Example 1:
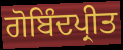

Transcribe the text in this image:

ਗੋਬਿੰਦਪ੍ਰੀਤ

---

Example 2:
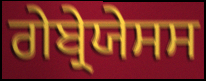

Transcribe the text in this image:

ਗੇਬ੍ਰੇਯੇਸਸ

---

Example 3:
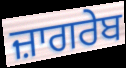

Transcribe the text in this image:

ਜ਼ਾਗਰੇਬ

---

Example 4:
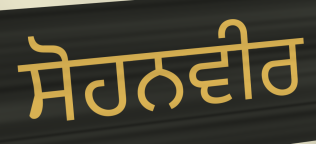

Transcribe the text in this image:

ਸੋਹਨਵੀਰ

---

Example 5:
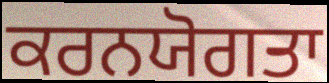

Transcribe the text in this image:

ਕਰਨਯੋਗਤਾ